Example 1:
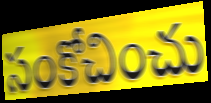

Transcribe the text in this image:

సంకోచించు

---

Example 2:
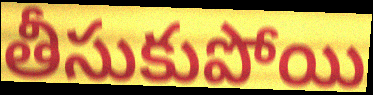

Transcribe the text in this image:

తీసుకుపోయి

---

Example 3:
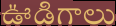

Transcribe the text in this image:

ఊడిగాలు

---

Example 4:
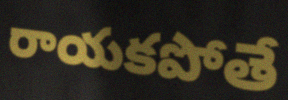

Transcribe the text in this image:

రాయకపోతే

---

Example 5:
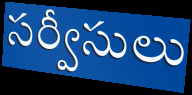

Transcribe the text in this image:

సర్వీసులు